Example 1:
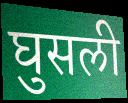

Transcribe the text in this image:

घुसली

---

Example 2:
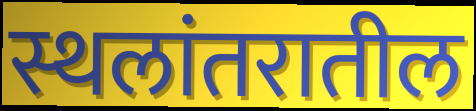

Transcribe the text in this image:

स्थलांतरातील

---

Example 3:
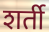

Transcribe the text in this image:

शर्ती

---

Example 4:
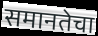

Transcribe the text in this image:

समानतेचा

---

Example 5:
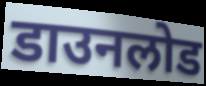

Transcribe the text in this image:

डाउनलोड